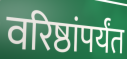
वरिष्ठांपर्यंत